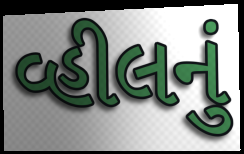
વ્હીલનું